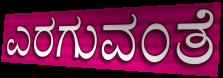
ಎರಗುವಂತೆ